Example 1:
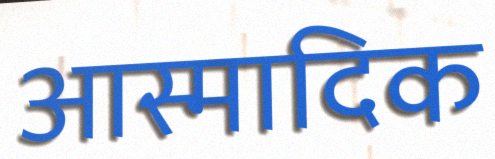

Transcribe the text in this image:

आस्मादिक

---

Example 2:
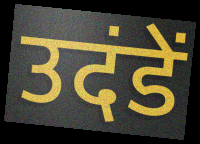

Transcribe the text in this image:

उदंडें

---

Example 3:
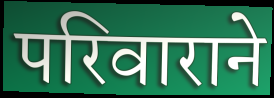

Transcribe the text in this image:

परिवाराने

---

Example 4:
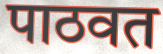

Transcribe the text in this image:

पाठवत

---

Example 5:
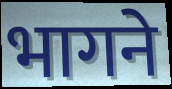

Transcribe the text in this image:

भागने